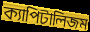
ক্যাপিটালিজম